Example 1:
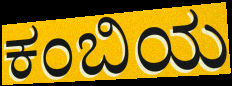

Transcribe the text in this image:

ಕಂಬಿಯ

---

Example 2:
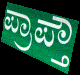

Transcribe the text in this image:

ಪ್ರಾಪ್ತೌ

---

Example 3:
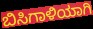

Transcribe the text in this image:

ಬಿಸಿಗಾಳಿಯಾಗಿ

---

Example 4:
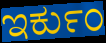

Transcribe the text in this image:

ಇರ್ಕುಂ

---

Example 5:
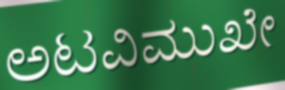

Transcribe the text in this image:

ಅಟವಿಮುಖೇ